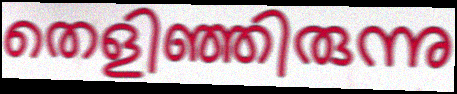
തെളിഞ്ഞിരുന്നു